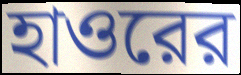
হাওরের